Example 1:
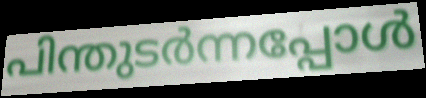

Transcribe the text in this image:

പിന്തുടർന്നപ്പോൾ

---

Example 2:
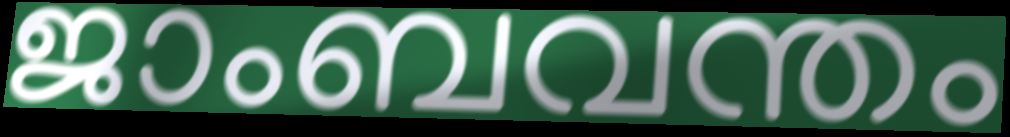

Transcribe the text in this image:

ജാംബവന്തം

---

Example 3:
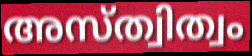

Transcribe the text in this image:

അസ്ത്വിത്വം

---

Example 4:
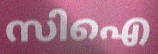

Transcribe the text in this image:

സിഐ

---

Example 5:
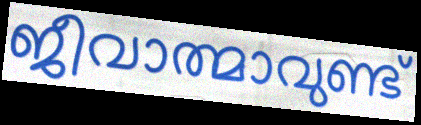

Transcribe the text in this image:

ജീവാത്മാവുണ്ട്